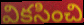
వికసించి